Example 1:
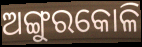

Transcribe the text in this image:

ଅଙ୍ଗୁରକୋଳି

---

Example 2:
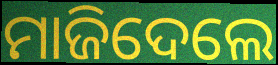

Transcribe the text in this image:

ମାଜିଦେଲେ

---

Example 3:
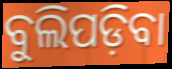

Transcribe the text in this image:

ବୁଲିପଡ଼ିବା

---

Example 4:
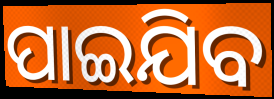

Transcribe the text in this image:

ପାଇଯିବ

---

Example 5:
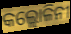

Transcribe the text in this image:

କଲ୍ଲୋଳିନୀ